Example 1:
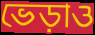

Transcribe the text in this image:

ভেড়াও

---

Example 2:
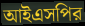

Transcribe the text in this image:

আইএসপির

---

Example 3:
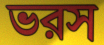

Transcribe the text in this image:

ভরস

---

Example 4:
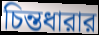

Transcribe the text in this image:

চিন্তধারার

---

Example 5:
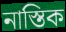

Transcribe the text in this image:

নাস্তিক